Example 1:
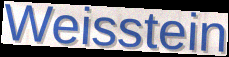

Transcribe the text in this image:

Weisstein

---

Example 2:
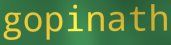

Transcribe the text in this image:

gopinath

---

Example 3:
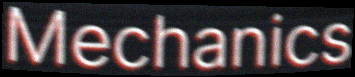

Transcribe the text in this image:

Mechanics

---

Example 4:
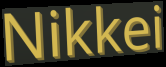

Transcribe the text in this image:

Nikkei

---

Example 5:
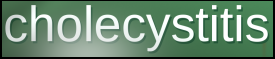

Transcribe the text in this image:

cholecystitis